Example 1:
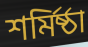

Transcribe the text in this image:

শৰ্মিষ্ঠা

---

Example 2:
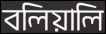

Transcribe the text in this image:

বলিয়ালি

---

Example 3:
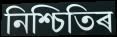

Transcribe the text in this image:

নিশ্চিতিৰ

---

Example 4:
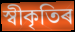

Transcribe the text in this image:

স্বীকৃতিৰ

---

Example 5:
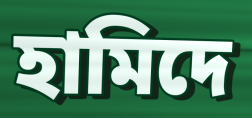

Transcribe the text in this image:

হামিদে